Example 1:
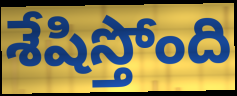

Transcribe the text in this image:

శేషిస్తోంది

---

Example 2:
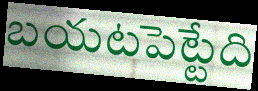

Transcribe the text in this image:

బయటపెట్టేది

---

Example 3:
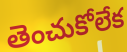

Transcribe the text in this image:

తెంచుకోలేక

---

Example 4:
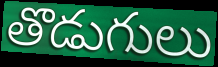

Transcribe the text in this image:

తొడుగులు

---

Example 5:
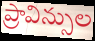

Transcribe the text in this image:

ప్రావిన్సుల